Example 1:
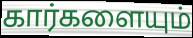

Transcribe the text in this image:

கார்களையும்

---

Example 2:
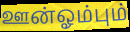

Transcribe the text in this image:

ஊன்ஓம்பும்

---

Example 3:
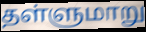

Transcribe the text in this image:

தள்ளுமாறு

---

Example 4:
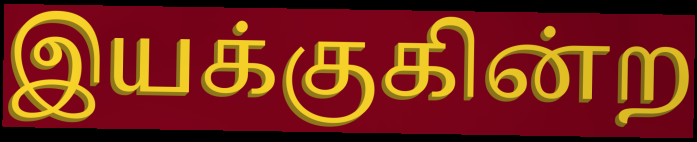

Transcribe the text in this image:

இயக்குகின்ற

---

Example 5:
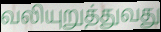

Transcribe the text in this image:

வலியுறுத்துவது